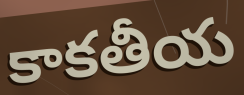
కాకతీయ